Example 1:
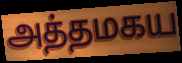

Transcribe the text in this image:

அத்தமகய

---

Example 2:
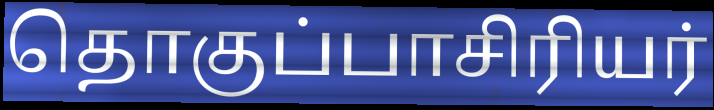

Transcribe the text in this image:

தொகுப்பாசிரியர்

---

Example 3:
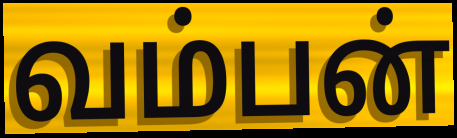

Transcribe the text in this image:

வம்பன்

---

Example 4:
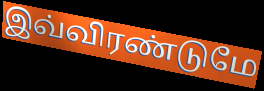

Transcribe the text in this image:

இவ்விரண்டுமே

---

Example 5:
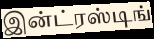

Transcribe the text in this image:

இன்ட்ரஸ்டிங்